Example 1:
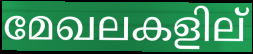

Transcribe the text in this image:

മേഖലകളില്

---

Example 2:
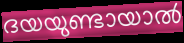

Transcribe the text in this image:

ദയയുണ്ടായാൽ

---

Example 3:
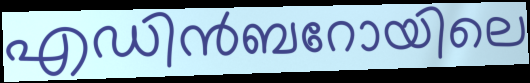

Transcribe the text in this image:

എഡിൻബറോയിലെ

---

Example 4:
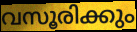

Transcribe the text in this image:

വസൂരിക്കും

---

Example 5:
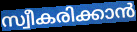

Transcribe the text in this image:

സ്വീകരിക്കാൻ